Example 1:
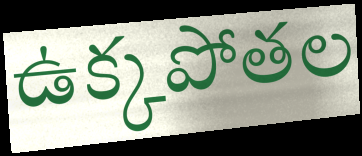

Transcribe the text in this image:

ఉక్కపోతల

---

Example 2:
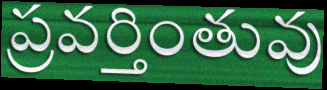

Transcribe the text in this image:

ప్రవర్తింతువు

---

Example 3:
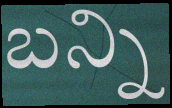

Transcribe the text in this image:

బన్ని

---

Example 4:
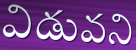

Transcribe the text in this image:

విడువని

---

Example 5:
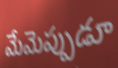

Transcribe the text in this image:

మేమెప్పుడూ